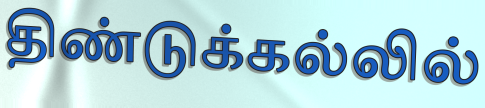
திண்டுக்கல்லில்